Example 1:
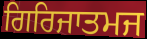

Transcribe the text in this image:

ਗਿਰਿਜਾਤਮਜ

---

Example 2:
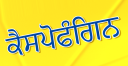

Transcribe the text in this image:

ਕੈਸਪੋਫੰਗਿਨ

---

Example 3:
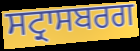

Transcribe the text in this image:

ਸਟ੍ਰਾਸਬਰਗ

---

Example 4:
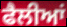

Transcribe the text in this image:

ਫੈਲੀਆਂ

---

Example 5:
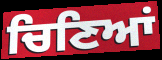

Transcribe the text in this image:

ਚਿਣਿਆਂ